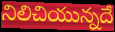
నిలిచియున్నదే